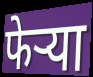
फेर्‍या